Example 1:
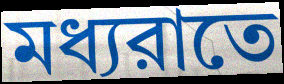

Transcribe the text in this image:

মধ্যরাতে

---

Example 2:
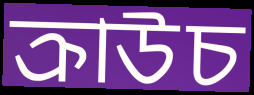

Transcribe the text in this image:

ক্রাউচ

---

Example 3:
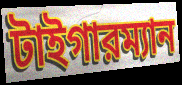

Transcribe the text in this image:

টাইগারম্যান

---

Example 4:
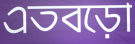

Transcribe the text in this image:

এতবড়ো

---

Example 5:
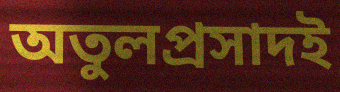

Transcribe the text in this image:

অতুলপ্রসাদই